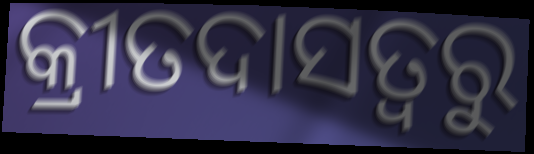
କ୍ରୀତଦାସତ୍ୱରୁ